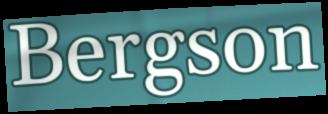
Bergson